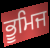
ਭੂਮਿਜ